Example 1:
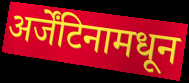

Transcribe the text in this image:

अर्जेंटिनामधून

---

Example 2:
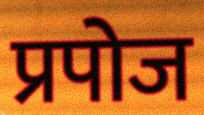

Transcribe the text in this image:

प्रपोज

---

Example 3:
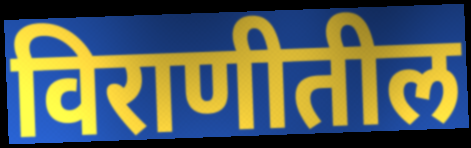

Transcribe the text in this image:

विराणीतील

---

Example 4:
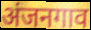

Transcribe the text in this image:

अंजनगाव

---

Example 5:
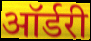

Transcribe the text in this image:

ऑर्डरी